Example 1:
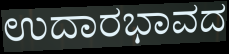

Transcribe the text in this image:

ಉದಾರಭಾವದ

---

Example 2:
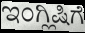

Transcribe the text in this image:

ಇಂಗ್ಲಿಷಿಗೆ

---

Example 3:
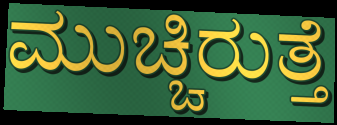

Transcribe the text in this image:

ಮುಚ್ಚಿರುತ್ತೆ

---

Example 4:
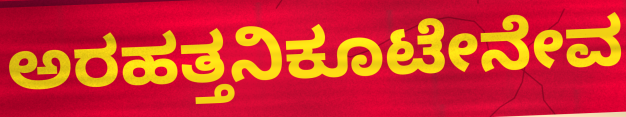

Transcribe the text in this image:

ಅರಹತ್ತನಿಕೂಟೇನೇವ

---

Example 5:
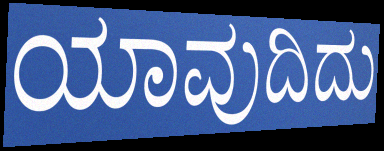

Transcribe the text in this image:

ಯಾವುದಿದು